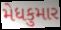
મેધકુમાર